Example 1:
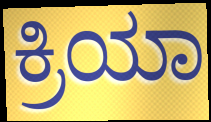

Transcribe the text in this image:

ಕ್ರಿಯಾ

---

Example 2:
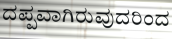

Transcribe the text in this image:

ದಪ್ಪವಾಗಿರುವುದರಿಂದ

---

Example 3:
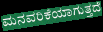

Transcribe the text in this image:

ಮನವರಿಕೆಯಾಗುತ್ತದೆ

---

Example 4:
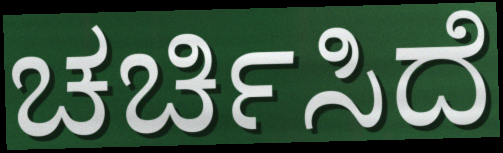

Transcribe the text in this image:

ಚರ್ಚಿಸಿದೆ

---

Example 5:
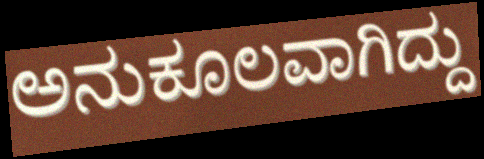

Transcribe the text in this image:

ಅನುಕೂಲವಾಗಿದ್ದು